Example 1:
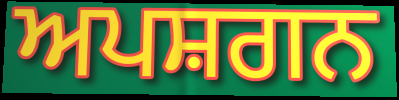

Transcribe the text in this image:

ਅਪਸ਼ਗਨ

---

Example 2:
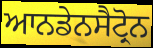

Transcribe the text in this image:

ਆਨਡੇਨਸੈਟ੍ਰੋਨ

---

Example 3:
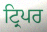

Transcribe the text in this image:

ਟ੍ਰਿਪਰ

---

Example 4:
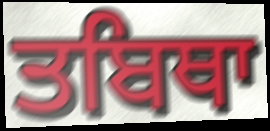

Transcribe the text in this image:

ਤਬਿਥਾ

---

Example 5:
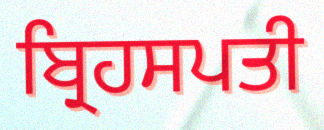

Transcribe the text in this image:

ਬ੍ਰਿਹਸਪਤੀ